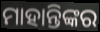
ମାହାନ୍ତିଙ୍କର